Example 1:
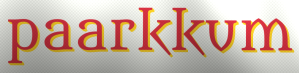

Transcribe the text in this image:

paarkkum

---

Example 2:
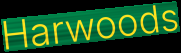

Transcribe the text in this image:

Harwoods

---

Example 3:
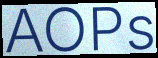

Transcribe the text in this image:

AOPs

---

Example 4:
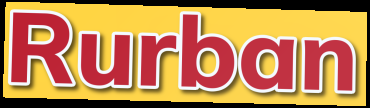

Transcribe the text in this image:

Rurban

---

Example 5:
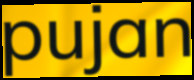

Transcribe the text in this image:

pujan